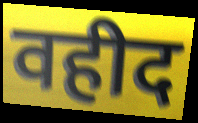
वहीद